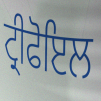
ਟ੍ਰੀਫੋਇਲ